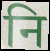
नि